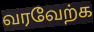
வரவேற்க